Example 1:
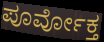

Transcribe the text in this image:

ಪೂರ್ವೋಕ್ತ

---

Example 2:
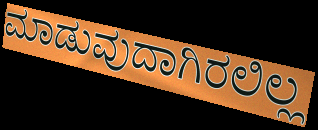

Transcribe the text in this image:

ಮಾಡುವುದಾಗಿರಲಿಲ್ಲ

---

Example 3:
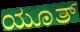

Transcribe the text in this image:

ಯೂತ್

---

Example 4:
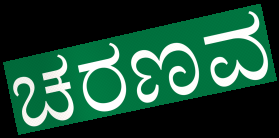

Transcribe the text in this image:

ಚರಣವ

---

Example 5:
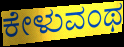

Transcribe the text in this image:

ಕೇಳುವಂಥ